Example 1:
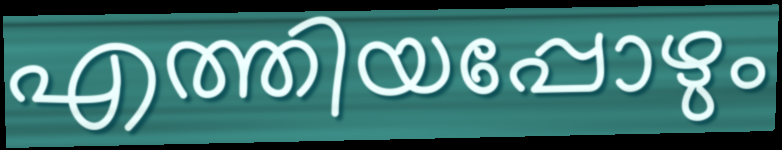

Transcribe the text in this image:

എത്തിയപ്പോഴും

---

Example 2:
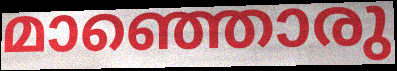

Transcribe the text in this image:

മാഞ്ഞൊരു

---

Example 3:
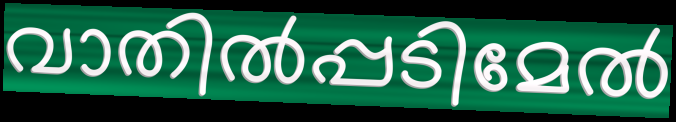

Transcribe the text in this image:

വാതിൽപ്പടിമേൽ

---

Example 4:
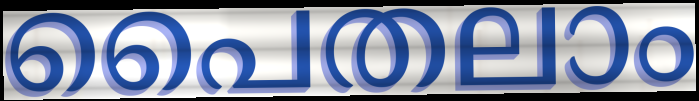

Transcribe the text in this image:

പൈതലാം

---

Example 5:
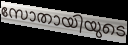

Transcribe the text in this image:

സോതായിയുടെ